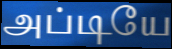
அப்டியே